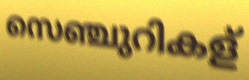
സെഞ്ചുറികള്